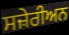
ਸਜ਼ੇਰੀਅਨ